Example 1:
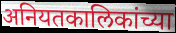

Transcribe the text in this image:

अनियतकालिकांच्या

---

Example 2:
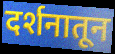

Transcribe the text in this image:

दर्शनातून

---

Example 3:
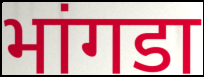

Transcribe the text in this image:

भांगडा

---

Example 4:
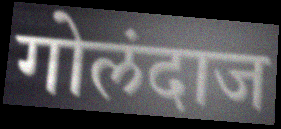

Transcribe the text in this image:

गोलंदाज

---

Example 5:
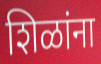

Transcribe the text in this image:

शिळांना